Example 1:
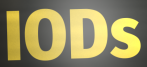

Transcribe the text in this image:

IODs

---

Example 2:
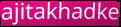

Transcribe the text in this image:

ajitakhadke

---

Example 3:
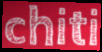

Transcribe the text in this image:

chiti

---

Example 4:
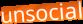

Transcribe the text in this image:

unsocial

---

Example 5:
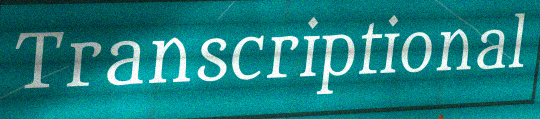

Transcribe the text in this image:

Transcriptional